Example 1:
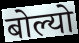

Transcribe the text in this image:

बोल्यो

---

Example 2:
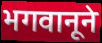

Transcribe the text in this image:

भगवानूने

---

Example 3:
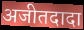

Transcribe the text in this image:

अजीतदादा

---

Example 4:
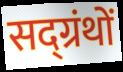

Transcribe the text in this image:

सद्ग्रंथों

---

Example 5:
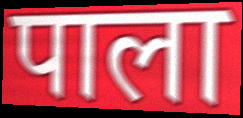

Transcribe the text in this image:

पाला